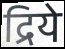
द्रिये